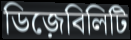
ডিজ়েবিলিটি